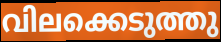
വിലക്കെടുത്തു